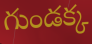
గుండక్క